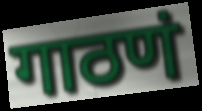
गाठणं